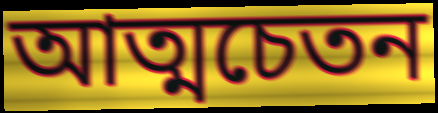
আত্মচেতন